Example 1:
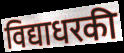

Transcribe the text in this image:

विद्याधरकी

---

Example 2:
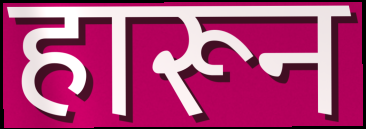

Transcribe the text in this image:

हारून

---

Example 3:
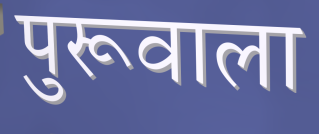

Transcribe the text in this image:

पुरूवाला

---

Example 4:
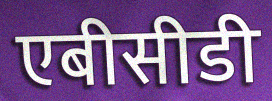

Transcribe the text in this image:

एबीसीडी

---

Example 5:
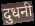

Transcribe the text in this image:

दुधनी